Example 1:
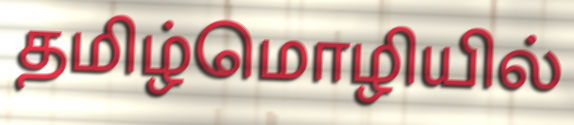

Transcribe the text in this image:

தமிழ்மொழியில்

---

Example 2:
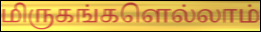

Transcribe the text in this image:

மிருகங்களெல்லாம்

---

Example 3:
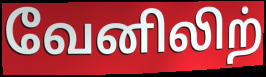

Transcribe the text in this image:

வேனிலிற்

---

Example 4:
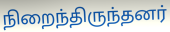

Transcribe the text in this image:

நிறைந்திருந்தனர்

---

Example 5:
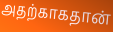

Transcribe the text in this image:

அதற்காகதான்